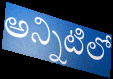
అన్నిటిలో